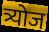
त्र्योज